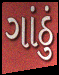
ગાંઠું